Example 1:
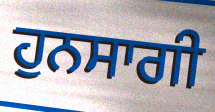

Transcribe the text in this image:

ਹੁਨਸਾਗੀ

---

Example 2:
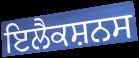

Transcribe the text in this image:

ਇਲੈਕਸ਼ਨਸ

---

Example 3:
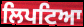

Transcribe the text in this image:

ਲਿਪਟਿਆ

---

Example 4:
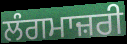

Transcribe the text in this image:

ਲੰਗਮਾਜ਼ਰੀ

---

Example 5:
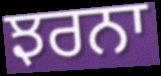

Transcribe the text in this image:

ਝਰਨਾ